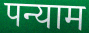
पन्याम